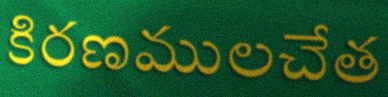
కిరణములచేత